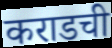
कराडची